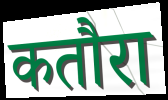
कतौरा